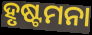
ହୃଷ୍ଟମନା